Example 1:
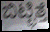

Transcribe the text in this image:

ಬಿಟ್ಟಿತ್ತೆ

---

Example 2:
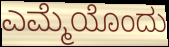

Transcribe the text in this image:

ಎಮ್ಮೆಯೊಂದು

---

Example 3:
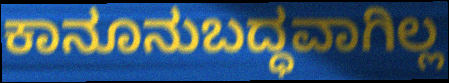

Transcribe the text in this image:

ಕಾನೂನುಬದ್ಧವಾಗಿಲ್ಲ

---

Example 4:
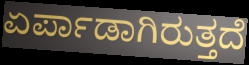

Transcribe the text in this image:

ಏರ್ಪಾಡಾಗಿರುತ್ತದೆ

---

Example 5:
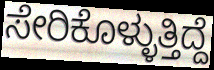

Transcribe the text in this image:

ಸೇರಿಕೊಳ್ಳುತ್ತಿದ್ದೆ